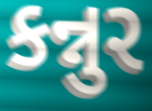
કન્નુર